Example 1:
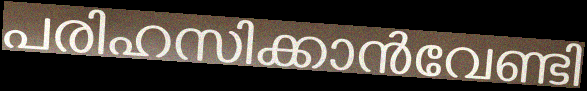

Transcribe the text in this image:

പരിഹസിക്കാൻവേണ്ടി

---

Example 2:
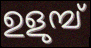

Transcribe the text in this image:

ഉളുമ്പ്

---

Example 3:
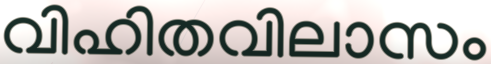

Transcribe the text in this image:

വിഹിതവിലാസം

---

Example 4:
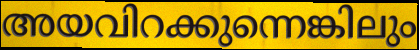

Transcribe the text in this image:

അയവിറക്കുന്നെങ്കിലും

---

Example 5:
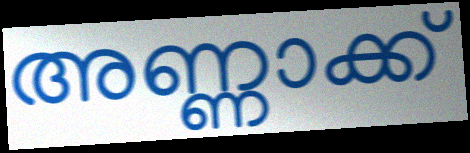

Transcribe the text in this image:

അണ്ണാക്ക്